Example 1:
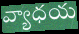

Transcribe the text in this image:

వ్యాధయ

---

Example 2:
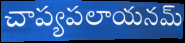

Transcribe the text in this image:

చాప్యపలాయనమ్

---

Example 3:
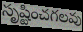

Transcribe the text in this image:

సృష్టించగలవు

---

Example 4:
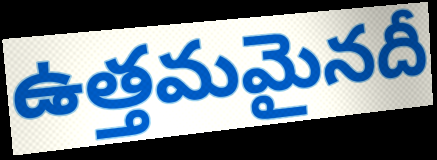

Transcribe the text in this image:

ఉత్తమమైనదీ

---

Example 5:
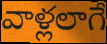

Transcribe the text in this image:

వాళ్లలాగే